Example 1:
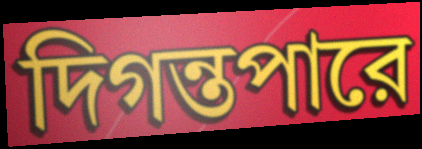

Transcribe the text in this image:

দিগন্তপারে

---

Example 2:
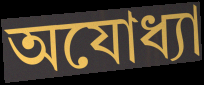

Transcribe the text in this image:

অযোধ্যা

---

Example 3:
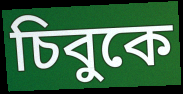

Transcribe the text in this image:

চিবুকে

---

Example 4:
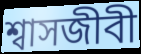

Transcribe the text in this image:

শ্বাসজীবী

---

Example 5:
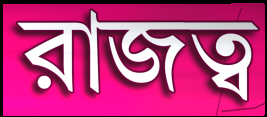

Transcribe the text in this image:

রাজত্ব